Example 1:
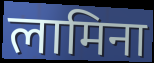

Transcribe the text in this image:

लामिना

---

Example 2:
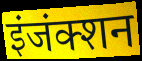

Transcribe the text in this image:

इंजंक्शन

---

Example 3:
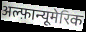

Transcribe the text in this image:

अल्फ़ान्यूमेरिक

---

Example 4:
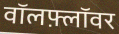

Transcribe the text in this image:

वॉलफ़्लॉवर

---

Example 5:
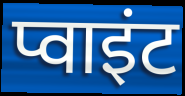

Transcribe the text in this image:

प्‍वाइंट